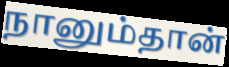
நானும்தான்